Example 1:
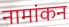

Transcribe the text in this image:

नामांकन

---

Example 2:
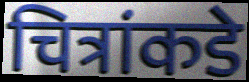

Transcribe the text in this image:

चित्रांकडे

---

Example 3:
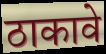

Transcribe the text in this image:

ठाकावे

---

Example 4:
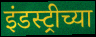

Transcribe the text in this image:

इंडस्ट्रीच्या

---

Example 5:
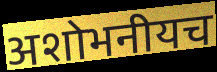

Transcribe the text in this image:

अशोभनीयच